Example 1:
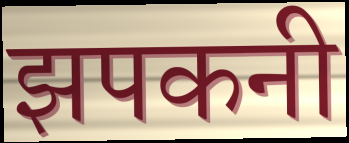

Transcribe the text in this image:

झपकनी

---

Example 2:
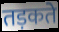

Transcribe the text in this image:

तड़कते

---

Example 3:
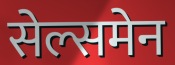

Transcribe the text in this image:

सेल्समेन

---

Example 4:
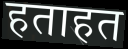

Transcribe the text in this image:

हताहत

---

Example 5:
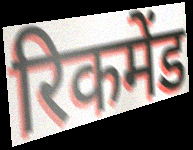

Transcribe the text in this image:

रिकमेंड